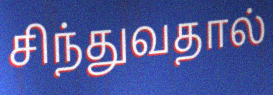
சிந்துவதால்